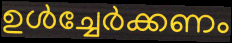
ഉൾച്ചേർക്കണം